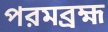
পরমব্রহ্ম